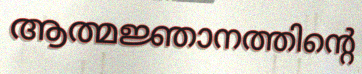
ആത്മജ്ഞാനത്തിന്റെ